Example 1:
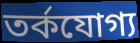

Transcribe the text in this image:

তর্কযোগ্য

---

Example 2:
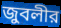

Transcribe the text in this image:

জুবলীর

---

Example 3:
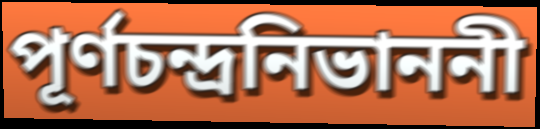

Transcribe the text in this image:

পূর্ণচন্দ্রনিভাননী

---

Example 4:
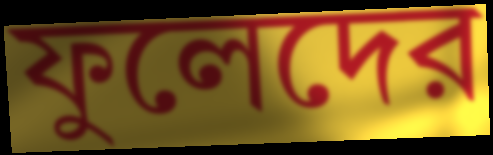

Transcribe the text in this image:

ফুলেদের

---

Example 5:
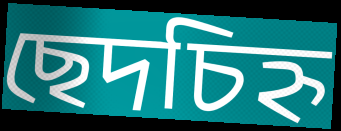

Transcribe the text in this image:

ছেদচিহ্ন